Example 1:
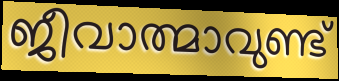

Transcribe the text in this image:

ജീവാത്മാവുണ്ട്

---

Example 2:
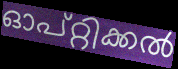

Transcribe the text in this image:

ഓപ്റ്റിക്കൽ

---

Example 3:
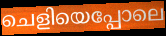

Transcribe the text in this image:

ചെളിയെപ്പോലെ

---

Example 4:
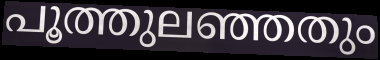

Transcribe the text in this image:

പൂത്തുലഞ്ഞതും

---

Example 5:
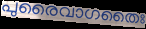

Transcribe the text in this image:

പുരൈവാഗതൈഃ